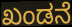
ಖಂಡನೆ